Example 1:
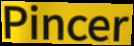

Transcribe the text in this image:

Pincer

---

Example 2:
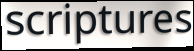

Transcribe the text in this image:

scriptures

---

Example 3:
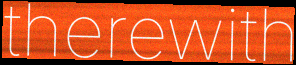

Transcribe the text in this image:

therewith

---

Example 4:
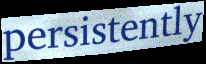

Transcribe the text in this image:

persistently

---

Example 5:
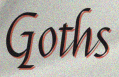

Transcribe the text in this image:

Goths